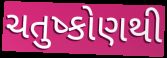
ચતુષ્કોણથી